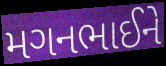
મગનભાઈને